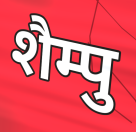
शैम्पु